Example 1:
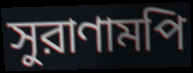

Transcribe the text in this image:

সুরাণামপি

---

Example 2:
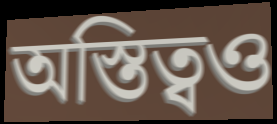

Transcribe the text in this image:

অস্তিত্বও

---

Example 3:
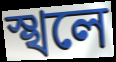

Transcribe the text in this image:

স্খলে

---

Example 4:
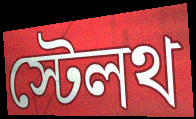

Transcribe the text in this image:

স্টেলথ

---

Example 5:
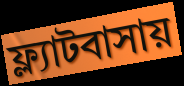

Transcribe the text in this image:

ফ্ল্যাটবাসায়